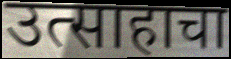
उत्साहाचा